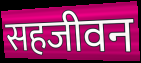
सहजीवन